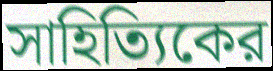
সাহিত্যিকের